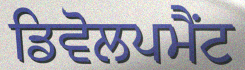
ਡਿਵੋਲਪਮੈਂਟ